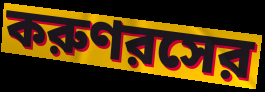
করুণরসের